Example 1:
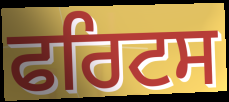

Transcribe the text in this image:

ਫਰਿਟਸ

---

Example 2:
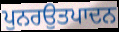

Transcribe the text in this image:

ਪੁਨਰਉਤਪਾਦਨ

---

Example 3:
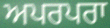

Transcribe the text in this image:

ਅਪਰਪਰਾ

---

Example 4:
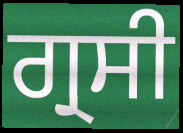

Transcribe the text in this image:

ਗ੍ਰਸੀ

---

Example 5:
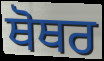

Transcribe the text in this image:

ਥੋਥਰ